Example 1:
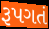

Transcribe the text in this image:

રૂપગતં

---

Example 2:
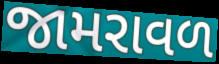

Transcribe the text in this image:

જામરાવળ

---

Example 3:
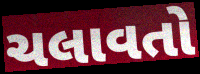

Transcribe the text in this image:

ચલાવતો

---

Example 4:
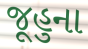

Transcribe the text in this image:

જૂહુના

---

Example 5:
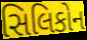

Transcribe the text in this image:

સિલિકોન